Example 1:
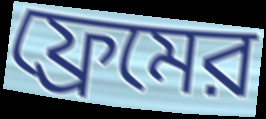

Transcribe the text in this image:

ফ্রেমের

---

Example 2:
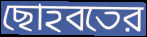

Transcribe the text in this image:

ছোহবতের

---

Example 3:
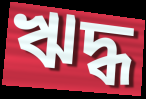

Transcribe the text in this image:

ঋদ্ধ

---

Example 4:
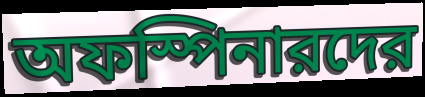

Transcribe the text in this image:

অফস্পিনারদের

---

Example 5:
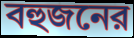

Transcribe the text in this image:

বহুজনের